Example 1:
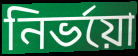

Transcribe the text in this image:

নির্ভয়ো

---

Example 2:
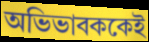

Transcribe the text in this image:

অভিভাবককেই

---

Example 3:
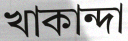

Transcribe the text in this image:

খাকান্দা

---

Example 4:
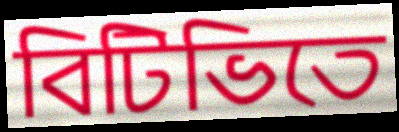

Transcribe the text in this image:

বিটিভিতে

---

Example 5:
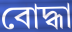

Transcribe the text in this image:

বোদ্ধা